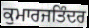
ਕੁਮਾਰਜਤਿੰਦਰ